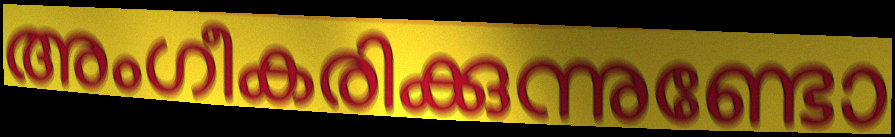
അംഗീകരിക്കുന്നുണ്ടോ